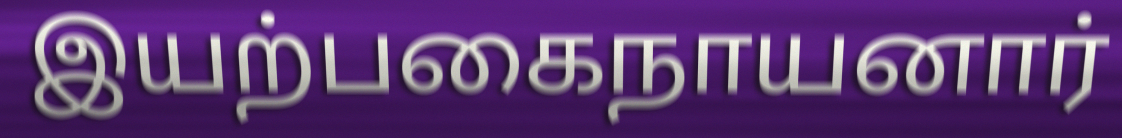
இயற்பகைநாயனார்